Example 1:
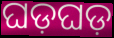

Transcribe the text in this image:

ଘଡ଼ଘଡ଼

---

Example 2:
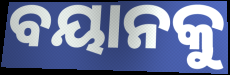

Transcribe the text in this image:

ବୟାନକୁ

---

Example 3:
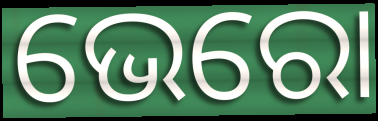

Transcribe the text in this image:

ଭେରୋ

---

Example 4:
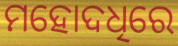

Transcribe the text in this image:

ମହୋଦଧିରେ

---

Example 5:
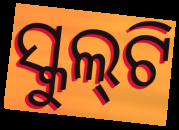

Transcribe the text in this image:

ସ୍କୁଲ୍‌ଟି